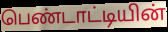
பெண்டாட்டியின்